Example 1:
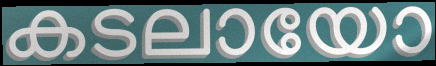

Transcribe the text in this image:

കടലായോ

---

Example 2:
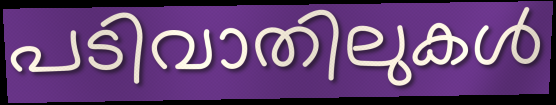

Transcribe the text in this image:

പടിവാതിലുകൾ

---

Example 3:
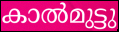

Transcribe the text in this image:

കാൽമുട്ടു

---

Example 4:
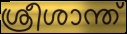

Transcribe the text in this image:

ശ്രീശാന്ത്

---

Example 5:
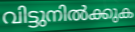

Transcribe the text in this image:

വിട്ടുനിൽക്കുക